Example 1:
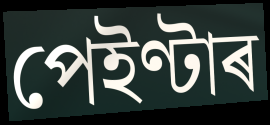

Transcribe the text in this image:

পেইণ্টাৰ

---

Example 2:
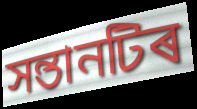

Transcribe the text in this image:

সন্তানটিৰ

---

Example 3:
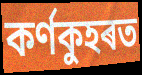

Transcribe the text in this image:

কৰ্ণকুহৰত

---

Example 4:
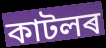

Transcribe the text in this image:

কাটলৰ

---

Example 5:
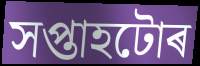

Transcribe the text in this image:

সপ্তাহটোৰ